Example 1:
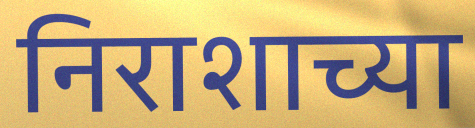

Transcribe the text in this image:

निराशाच्या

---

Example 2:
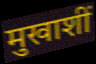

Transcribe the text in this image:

मुखाशीं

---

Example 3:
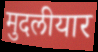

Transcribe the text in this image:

मुदलीयार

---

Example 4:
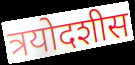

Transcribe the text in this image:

त्रयोदशीस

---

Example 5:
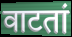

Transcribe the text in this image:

वाटतां